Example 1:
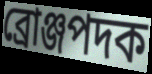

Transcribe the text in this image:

ব্রোঞ্জপদক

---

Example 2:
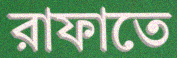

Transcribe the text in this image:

রাফাতে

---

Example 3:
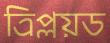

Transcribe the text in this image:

ত্রিপ্লয়ড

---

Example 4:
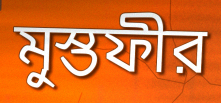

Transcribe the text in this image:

মুস্তফীর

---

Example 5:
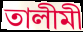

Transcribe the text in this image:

তালীমী